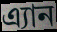
এ্যান